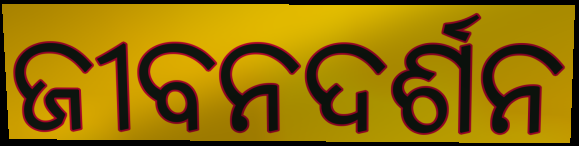
ଜୀବନଦର୍ଶନ